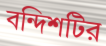
বন্দিশটির